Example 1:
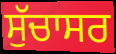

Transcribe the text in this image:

ਸੁੱਚਾਸਰ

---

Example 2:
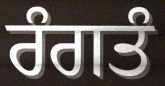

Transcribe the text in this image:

ਰੰਗਤੰ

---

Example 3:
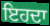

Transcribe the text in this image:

ਇਹਦਾ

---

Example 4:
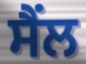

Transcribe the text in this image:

ਸੈਂਲ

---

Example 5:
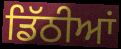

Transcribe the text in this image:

ਡਿੱਠੀਆਂ